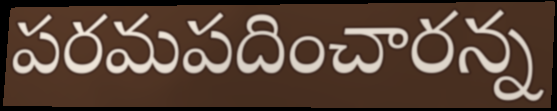
పరమపదించారన్న